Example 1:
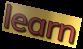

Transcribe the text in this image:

learn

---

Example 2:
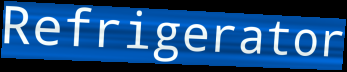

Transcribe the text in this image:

Refrigerator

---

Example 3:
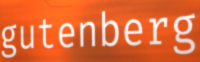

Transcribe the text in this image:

gutenberg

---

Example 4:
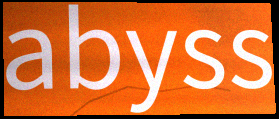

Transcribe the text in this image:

abyss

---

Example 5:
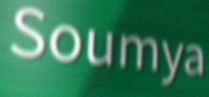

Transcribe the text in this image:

Soumya